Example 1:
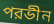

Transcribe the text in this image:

পরভীন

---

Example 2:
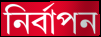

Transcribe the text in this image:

নির্বাপন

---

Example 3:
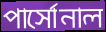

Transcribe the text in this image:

পার্সোনাল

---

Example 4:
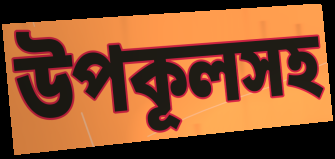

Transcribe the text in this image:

উপকূলসহ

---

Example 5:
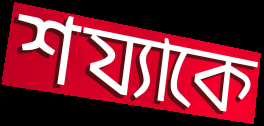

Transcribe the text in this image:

শয্যাকে